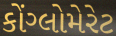
કોંગ્લોમેરેટ